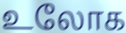
உலோக